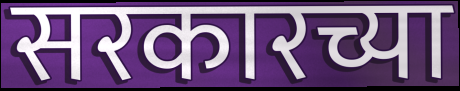
सरकारच्या